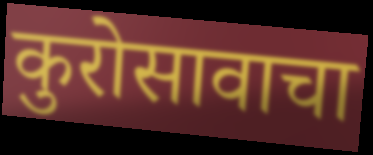
कुरोसावाचा